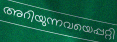
അറിയുന്നവയെപ്പറ്റി